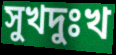
সুখদুঃখ